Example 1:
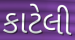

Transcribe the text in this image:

કાટેલી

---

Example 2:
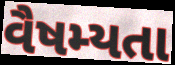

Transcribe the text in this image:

વૈષમ્યતા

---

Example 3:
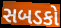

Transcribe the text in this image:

સબડકો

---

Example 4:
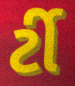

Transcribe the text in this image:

ર્ટી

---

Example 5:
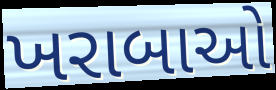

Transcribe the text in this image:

ખરાબાઓ